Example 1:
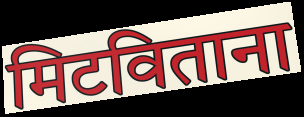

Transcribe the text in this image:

मिटविताना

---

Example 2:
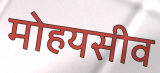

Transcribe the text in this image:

मोहयसीव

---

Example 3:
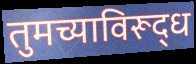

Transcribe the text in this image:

तुमच्याविरूद्ध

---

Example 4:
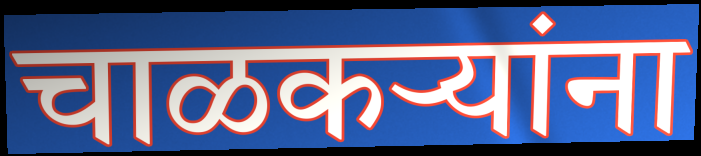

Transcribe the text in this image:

चाळकऱ्यांना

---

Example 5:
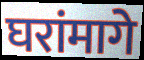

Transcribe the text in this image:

घरांमागे